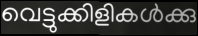
വെട്ടുക്കിളികൾക്കു